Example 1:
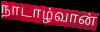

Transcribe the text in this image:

நாடாழ்வான்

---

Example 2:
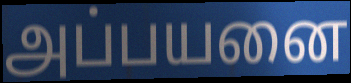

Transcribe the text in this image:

அப்பயனை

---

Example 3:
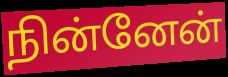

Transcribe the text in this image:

நின்னேன்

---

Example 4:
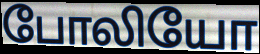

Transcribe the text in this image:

போலியோ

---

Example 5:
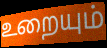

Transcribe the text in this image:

உறையும்